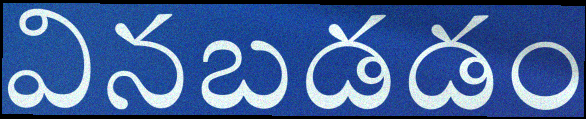
వినబడడం